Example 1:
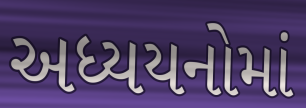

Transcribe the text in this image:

અધ્યયનોમાં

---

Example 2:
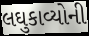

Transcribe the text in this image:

લઘુકાવ્યોની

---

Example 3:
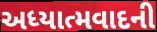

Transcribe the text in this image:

અધ્યાત્મવાદની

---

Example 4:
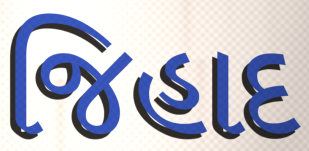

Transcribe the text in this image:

જિહાદ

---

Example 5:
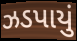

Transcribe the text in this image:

ઝડપાયું